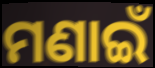
ମଣାଇଁ